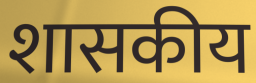
शासकीय